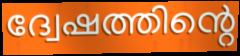
ദ്വേഷത്തിന്റെ